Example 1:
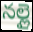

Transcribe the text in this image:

నల్లై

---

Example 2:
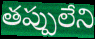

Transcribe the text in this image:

తప్పులేని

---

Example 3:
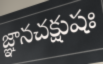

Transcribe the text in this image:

జ్ఞానచక్షుషః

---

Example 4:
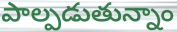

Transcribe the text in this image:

పాల్పడుతున్నాం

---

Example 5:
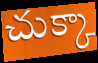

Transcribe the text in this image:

చుక్కా